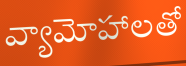
వ్యామోహాలతో